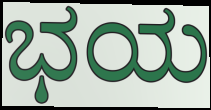
ಭಯ